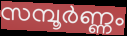
സമ്പൂർണ്ണം